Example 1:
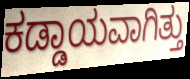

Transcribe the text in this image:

ಕಡ್ಡಾಯವಾಗಿತ್ತು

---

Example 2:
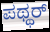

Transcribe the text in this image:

ಪಥ್ಥರ್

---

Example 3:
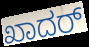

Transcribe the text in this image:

ಖಾದರ್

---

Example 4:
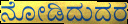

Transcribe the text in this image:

ನೋಡಿದುದರ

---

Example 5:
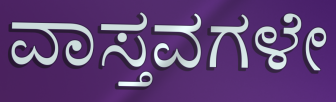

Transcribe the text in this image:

ವಾಸ್ತವಗಳೇ